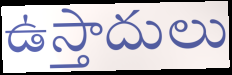
ఉస్తాదులు